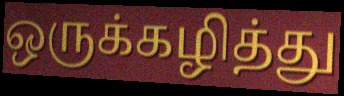
ஒருக்கழித்து